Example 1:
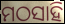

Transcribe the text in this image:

ମଠସାହି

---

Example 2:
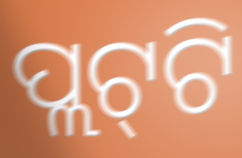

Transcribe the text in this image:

ପ୍ଲଟ୍‌ଟି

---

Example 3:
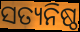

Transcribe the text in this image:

ସତ୍ୟନିଷ୍ଠ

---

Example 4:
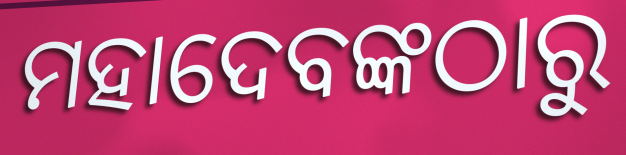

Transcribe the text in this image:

ମହାଦେବଙ୍କଠାରୁ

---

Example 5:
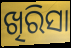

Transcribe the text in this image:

ଖିରିସା